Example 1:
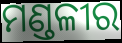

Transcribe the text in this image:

ମଣ୍ଡଳୀର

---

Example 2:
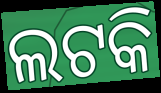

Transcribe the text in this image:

ଲଟକି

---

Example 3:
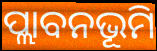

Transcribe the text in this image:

ପ୍ଲାବନଭୂମି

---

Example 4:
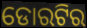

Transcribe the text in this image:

ଡୋରଟିର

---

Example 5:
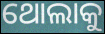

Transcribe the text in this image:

ଥୋଲାକୁ